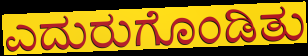
ಎದುರುಗೊಂಡಿತು